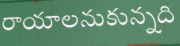
రాయాలనుకున్నది